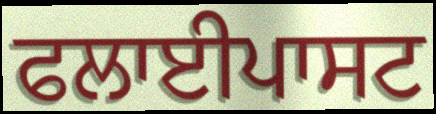
ਫਲਾਈਪਾਸਟ